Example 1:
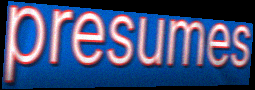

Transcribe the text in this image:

presumes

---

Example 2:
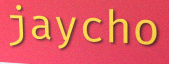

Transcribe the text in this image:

jaycho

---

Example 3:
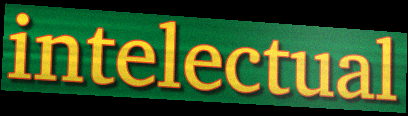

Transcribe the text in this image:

intelectual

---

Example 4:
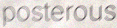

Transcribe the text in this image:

posterous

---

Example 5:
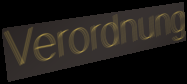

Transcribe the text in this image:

Verordnung